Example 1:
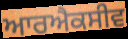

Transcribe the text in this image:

ਆਰਐਕਸੀਵ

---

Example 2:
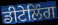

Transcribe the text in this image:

ਡੀਟੇਲਿੰਗ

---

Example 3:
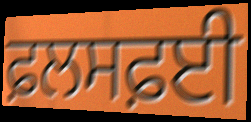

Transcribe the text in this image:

ਫ਼ਲਸਫ਼ਈ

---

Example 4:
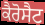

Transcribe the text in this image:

ਕੈਰੋਸੈਟ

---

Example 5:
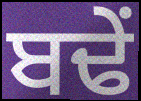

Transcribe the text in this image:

ਬਢੇਂ